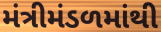
મંત્રીમંડળમાંથી